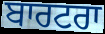
ਬਾਰਟਰਾ